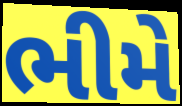
ભીમે